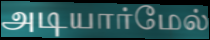
அடியார்மேல்